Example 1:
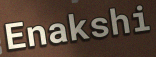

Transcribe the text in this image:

Enakshi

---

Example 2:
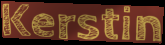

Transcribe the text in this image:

Kerstin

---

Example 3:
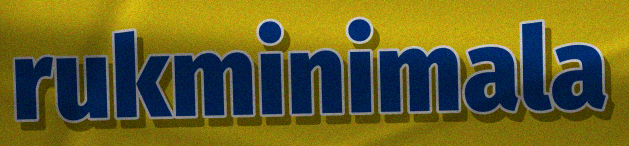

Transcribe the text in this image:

rukminimala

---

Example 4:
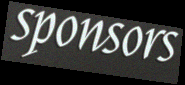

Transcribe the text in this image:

sponsors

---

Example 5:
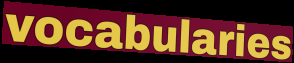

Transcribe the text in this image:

vocabularies